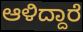
ಆಳಿದ್ದಾರೆ